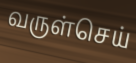
வருள்செய்